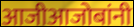
आजीआजोबांनी